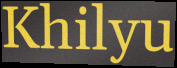
Khilyu